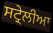
ਸਟ੍ਰੇਲੀਆ